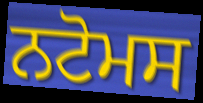
ਨਟੋਮਸ